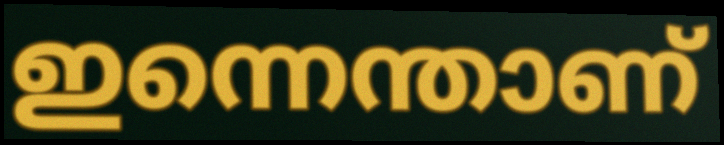
ഇന്നെന്താണ്